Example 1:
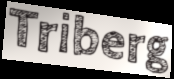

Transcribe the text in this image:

Triberg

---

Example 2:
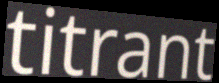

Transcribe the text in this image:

titrant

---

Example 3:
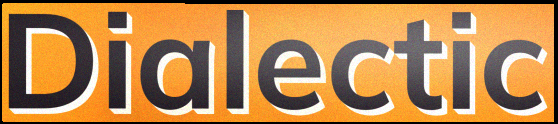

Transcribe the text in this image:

Dialectic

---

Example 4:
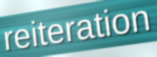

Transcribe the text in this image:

reiteration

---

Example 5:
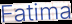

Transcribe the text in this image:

Fatima